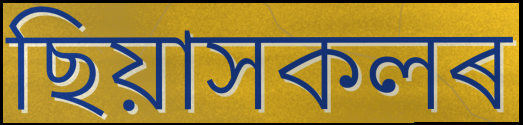
ছিয়াসকলৰ